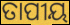
ତାପୀୟ